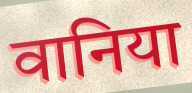
वानिया